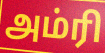
அம்ரி